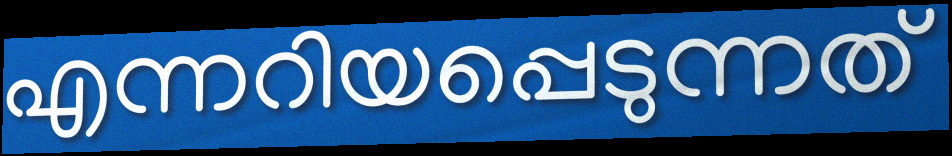
എന്നറിയപ്പെടുന്നത്